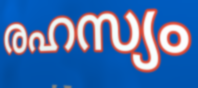
രഹസ്യം